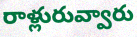
రాళ్లురువ్వారు